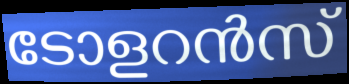
ടോളറൻസ്